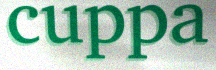
cuppa